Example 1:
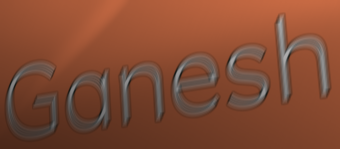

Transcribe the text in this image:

Ganesh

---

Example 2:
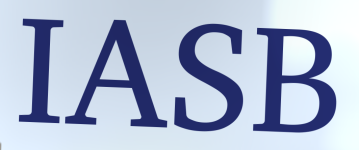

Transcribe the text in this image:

IASB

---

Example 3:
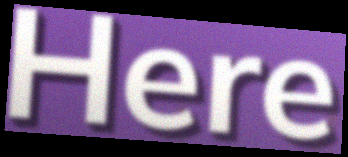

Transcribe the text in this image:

Here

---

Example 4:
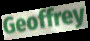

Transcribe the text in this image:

Geoffrey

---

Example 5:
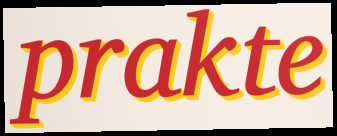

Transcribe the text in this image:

prakte